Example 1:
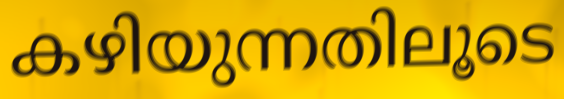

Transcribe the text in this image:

കഴിയുന്നതിലൂടെ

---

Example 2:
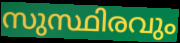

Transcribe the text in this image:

സുസ്ഥിരവും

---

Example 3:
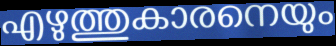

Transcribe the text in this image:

എഴുത്തുകാരനെയും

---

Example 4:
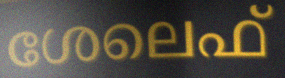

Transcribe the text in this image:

ശേലെഫ്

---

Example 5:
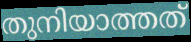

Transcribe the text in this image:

തുനിയാത്തത്